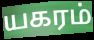
யகரம்